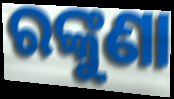
ରଙ୍କୁଣା